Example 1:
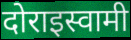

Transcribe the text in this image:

दोराइस्वामी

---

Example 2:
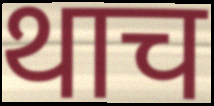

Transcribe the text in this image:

थाच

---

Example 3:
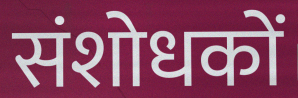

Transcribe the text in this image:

संशोधकों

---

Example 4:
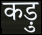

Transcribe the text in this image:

कड़ु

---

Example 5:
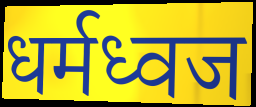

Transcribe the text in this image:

धर्मध्वज